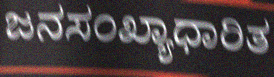
ಜನಸಂಖ್ಯಾಧಾರಿತ